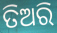
ତିଅରି